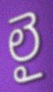
లై